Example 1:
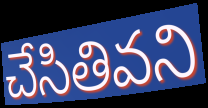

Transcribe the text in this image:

చేసితివని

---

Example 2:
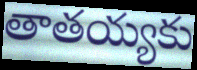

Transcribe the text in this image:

తాతయ్యకు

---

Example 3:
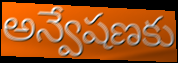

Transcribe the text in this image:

అన్వేషణకు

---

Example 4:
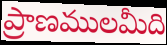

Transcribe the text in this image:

ప్రాణములమీది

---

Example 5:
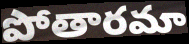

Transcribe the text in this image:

పోతారమా